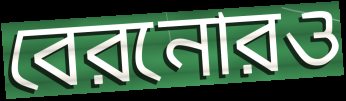
বেরনোরও